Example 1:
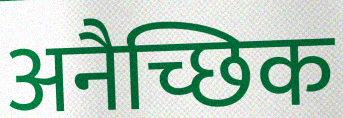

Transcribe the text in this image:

अनैच्छिक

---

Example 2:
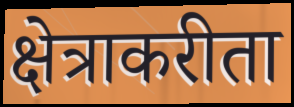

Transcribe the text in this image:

क्षेत्राकरीता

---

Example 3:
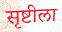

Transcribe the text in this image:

सृष्टीला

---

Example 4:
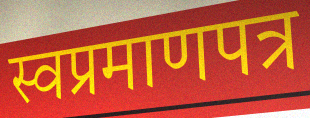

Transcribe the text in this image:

स्वप्रमाणपत्र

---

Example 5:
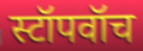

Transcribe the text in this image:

स्टॉपवॉच